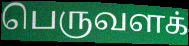
பெருவளக்